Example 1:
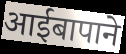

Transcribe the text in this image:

आईबापाने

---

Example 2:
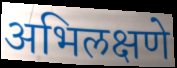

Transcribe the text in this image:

अभिलक्षणे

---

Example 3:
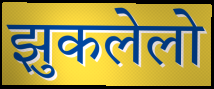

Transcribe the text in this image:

झुकलेलो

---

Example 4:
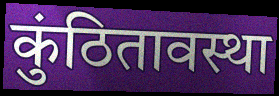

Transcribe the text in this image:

कुंठितावस्था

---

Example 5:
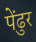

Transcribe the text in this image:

पेंढुर